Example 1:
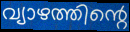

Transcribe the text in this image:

വ്യാഴത്തിന്റെ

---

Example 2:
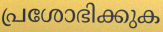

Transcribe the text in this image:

പ്രശോഭിക്കുക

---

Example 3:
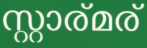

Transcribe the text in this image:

സ്റ്റാര്മര്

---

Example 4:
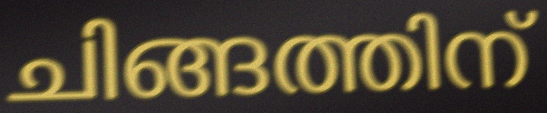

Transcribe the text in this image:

ചിങ്ങത്തിന്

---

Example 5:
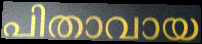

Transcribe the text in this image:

പിതാവായ